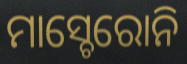
ମାସ୍ଚେରୋନି